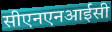
सीएनएनआईसी